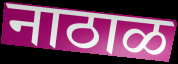
नाठाळ